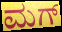
ಮಗ್